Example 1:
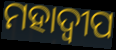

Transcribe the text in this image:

ମହାଦ୍ୱୀପ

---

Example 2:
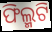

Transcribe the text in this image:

ଫିଲ୍ମଟି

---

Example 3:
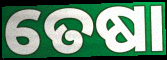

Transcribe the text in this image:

ତେଷା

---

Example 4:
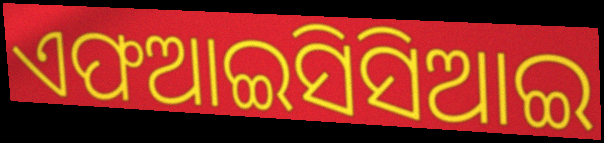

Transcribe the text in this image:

ଏଫଆଇସିସିଆଇ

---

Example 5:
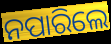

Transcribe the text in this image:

ନପାରିଲେ